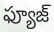
ఫ్యూజ్